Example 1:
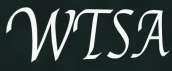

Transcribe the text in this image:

WTSA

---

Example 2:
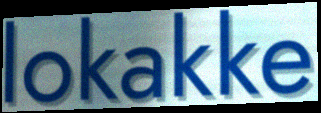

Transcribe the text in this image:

lokakke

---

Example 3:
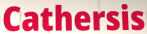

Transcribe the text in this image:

Cathersis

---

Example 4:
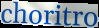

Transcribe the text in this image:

choritro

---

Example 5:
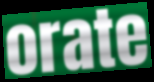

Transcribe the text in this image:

orate